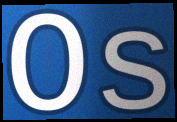
Os